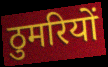
ठुमरियों